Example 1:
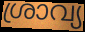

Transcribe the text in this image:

ശ്രാവ്യ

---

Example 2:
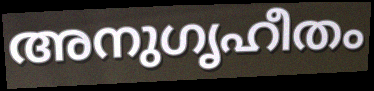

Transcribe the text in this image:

അനുഗൃഹീതം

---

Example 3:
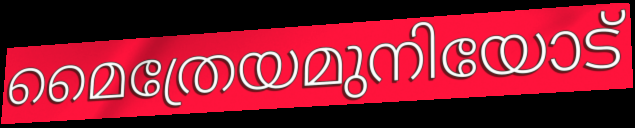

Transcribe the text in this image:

മൈത്രേയമുനിയോട്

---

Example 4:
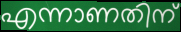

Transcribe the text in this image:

എന്നാണതിന്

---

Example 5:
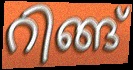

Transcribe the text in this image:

റിങ്ങ്